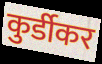
कुर्डीकर